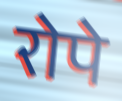
रोपे